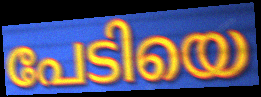
പേടിയെ